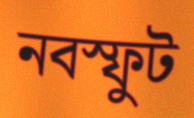
নবস্ফুট